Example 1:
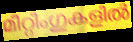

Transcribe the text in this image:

മീറ്റിംഗുകളിൽ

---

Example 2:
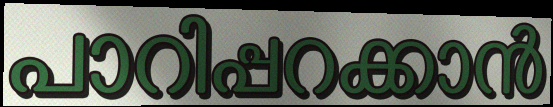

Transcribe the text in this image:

പാറിപ്പറക്കാൻ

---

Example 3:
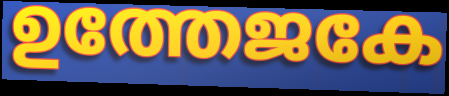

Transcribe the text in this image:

ഉത്തേജകേ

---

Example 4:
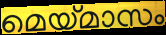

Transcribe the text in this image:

മെയ്മാസം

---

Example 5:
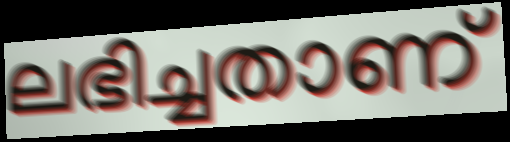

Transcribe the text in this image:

ലഭിച്ചതാണ്